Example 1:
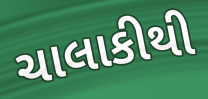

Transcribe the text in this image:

ચાલાકીથી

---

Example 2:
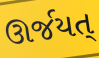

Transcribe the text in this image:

ઊર્જયત્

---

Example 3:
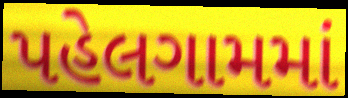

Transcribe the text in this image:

પહેલગામમાં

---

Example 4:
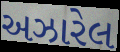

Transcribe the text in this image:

અઝારેલ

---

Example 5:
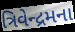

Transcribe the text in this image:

ત્રિવેન્દ્રમના